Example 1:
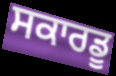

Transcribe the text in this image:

ਸਕਾਰਡੂ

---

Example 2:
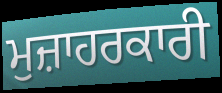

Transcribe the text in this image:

ਮੁਜ਼ਾਹਰਕਾਰੀ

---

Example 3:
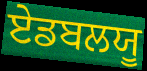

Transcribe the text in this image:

ਏਡਬਲਯੂ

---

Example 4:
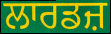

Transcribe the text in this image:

ਲਾਰਡਜ਼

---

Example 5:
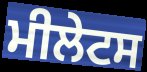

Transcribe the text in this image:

ਮੀਲੇਟਸ